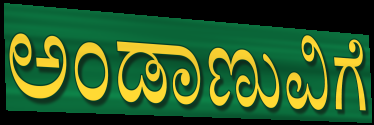
ಅಂಡಾಣುವಿಗೆ